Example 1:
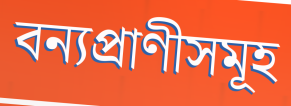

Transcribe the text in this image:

বন্যপ্ৰাণীসমূহ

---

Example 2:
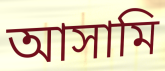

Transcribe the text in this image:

আসামি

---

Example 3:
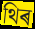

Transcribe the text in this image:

থিৰ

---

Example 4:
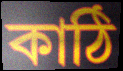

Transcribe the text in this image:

কাঠি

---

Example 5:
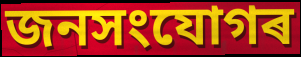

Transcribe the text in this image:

জনসংযোগৰ